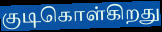
குடிகொள்கிறது